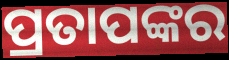
ପ୍ରତାପଙ୍କର